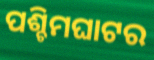
ପଶ୍ଚିମଘାଟର